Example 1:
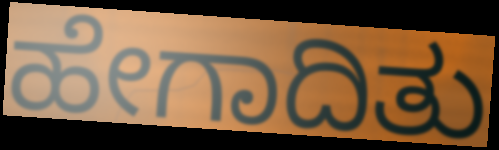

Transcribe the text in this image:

ಹೇಗಾದಿತು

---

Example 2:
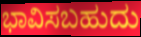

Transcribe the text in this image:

ಭಾವಿಸಬಹುದು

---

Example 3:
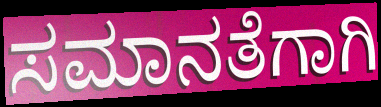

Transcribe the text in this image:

ಸಮಾನತೆಗಾಗಿ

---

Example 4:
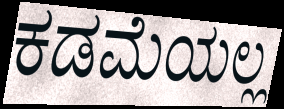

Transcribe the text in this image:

ಕಡಮೆಯಲ್ಲ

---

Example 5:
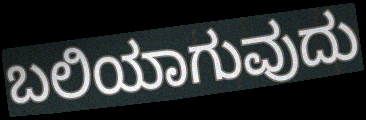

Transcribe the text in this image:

ಬಲಿಯಾಗುವುದು